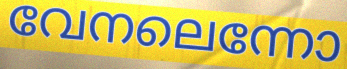
വേനലെന്നോ